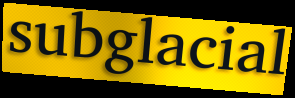
subglacial